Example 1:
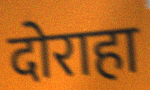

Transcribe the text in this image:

दोराहा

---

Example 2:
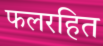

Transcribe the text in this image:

फलरहित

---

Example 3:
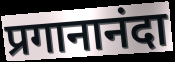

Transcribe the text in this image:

प्रगानानंदा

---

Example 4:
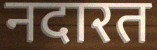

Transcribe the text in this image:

नदारत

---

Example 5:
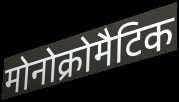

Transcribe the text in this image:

मोनोक्रोमैटिक